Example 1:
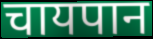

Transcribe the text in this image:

चायपान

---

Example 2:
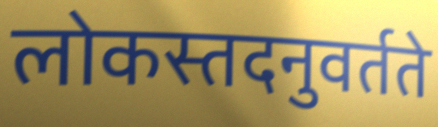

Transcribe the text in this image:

लोकस्तदनुवर्तते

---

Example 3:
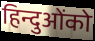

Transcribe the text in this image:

हिन्दुओंको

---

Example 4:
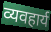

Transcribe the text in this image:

व्यवहार्य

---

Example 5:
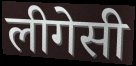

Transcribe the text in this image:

लीगेसी